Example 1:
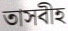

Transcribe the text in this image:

তাসবীহ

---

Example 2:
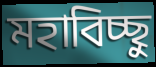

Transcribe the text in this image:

মহাবিচ্ছু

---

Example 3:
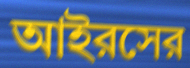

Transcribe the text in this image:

আইরসের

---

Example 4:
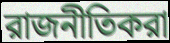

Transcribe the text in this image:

রাজনীতিকরা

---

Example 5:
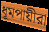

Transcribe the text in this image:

ধূমপায়ীরা